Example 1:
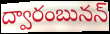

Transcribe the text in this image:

ద్వారంబునన్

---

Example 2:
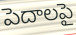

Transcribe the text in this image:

పెదాలపై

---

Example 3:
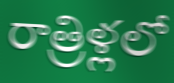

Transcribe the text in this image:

రాత్రిళ్లలో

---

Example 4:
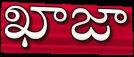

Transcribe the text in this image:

ఖాజా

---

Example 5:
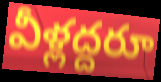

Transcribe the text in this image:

వీళ్లద్దరూ